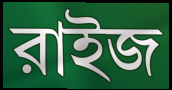
রাইজ